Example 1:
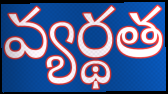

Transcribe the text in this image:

వ్యర్థత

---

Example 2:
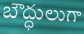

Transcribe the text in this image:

బౌద్ధులుగా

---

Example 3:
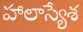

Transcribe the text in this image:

హాలాస్యేశ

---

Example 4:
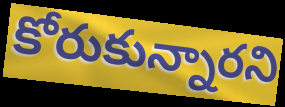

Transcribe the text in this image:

కోరుకున్నారని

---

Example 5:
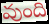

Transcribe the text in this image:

వుంది